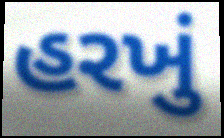
હરખું